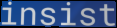
insist